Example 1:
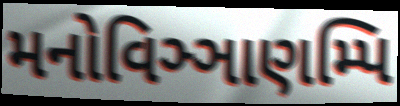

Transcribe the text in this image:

મનોવિઞ્ઞાણમ્પિ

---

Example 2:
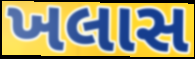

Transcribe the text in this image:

ખલાસ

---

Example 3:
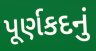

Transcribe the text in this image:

પૂર્ણકદનું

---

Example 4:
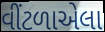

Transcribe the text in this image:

વીંટળાએલા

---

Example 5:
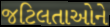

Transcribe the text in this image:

જટિલતાઓને